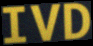
IVD